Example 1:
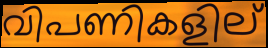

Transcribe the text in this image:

വിപണികളില്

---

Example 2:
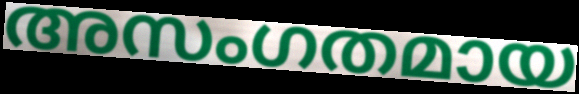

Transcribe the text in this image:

അസംഗതമായ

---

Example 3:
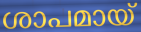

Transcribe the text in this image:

ശാപമായ്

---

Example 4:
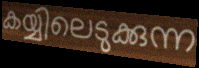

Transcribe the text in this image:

കയ്യിലെടുക്കുന്ന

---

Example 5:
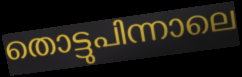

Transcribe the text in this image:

തൊട്ടുപിന്നാലെ